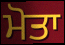
ਮੋਤਾ